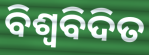
ବିଶ୍ବବିଦିତ